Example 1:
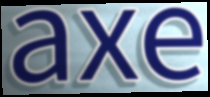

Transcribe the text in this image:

axe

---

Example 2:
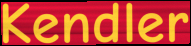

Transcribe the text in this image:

Kendler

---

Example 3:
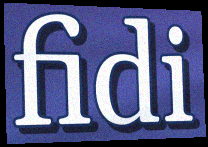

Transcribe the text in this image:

fidi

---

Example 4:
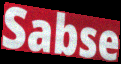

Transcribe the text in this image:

Sabse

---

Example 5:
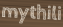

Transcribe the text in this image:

mythili